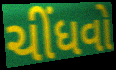
ચીંધવો